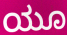
ಯೂ